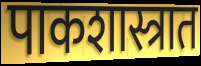
पाकशास्त्रात